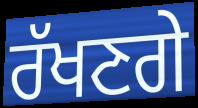
ਰੱਖਣਗੇ